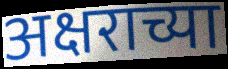
अक्षराच्या